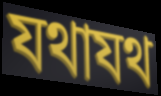
যথাযথ